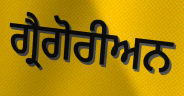
ਗ੍ਰੈਗੋਰੀਅਨ